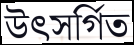
উৎসর্গিত